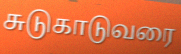
சுடுகாடுவரை